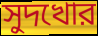
সুদখোর